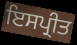
ਇਸਪ੍ਰੀਤ